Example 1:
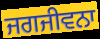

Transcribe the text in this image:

ਜਗਜੀਵਨਾ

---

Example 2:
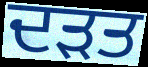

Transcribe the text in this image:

ਦੜਤ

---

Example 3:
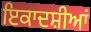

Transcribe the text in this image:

ਇਕਾਦਸ਼ੀਆਂ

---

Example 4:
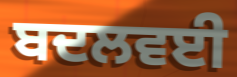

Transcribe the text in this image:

ਬਦਲਵਈ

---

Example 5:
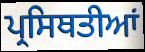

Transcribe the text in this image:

ਪ੍ਰਸਿਥਤੀਆਂ